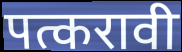
पत्करावी